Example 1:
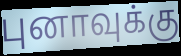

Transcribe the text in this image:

புனாவுக்கு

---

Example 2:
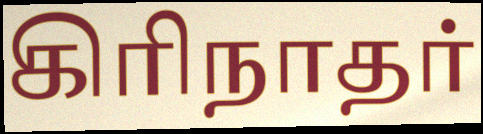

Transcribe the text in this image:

கிரிநாதர்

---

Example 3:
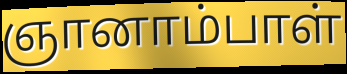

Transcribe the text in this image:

ஞானாம்பாள்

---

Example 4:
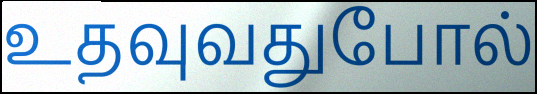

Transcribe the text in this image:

உதவுவதுபோல்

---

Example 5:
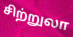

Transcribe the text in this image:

சிற்றுலா